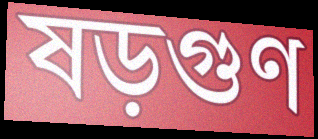
ষড়গুণ